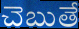
చెబుతే